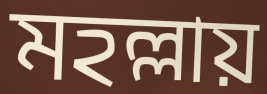
মহল্লায়